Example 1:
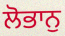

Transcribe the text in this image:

ਲੋਭਾਨੁ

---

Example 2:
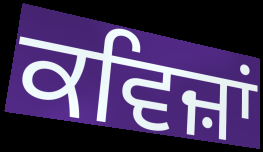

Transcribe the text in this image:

ਕਵਿਜ਼ਾਂ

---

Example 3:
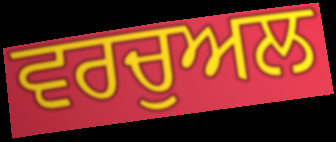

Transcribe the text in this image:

ਵਰਚੁਅਲ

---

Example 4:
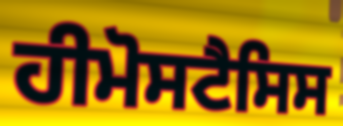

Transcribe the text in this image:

ਹੀਮੋਸਟੈਸਿਸ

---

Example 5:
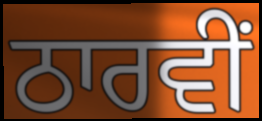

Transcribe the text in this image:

ਠਾਰਵੀਂ